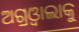
ଅଗ୍ରଓ୍ୱାଲାକୁ